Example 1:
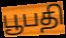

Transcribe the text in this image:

பூபதி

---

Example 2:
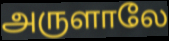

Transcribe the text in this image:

அருளாலே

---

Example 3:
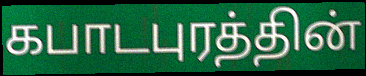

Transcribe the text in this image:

கபாடபுரத்தின்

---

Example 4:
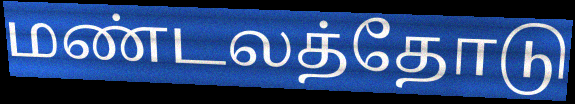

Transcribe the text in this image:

மண்டலத்தோடு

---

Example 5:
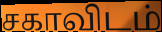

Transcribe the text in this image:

சகாவிடம்